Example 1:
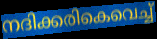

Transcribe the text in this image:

നദിക്കരികെവെച്ച്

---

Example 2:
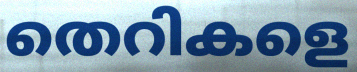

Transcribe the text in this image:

തെറികളെ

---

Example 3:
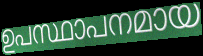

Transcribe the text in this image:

ഉപസ്ഥാപനമായ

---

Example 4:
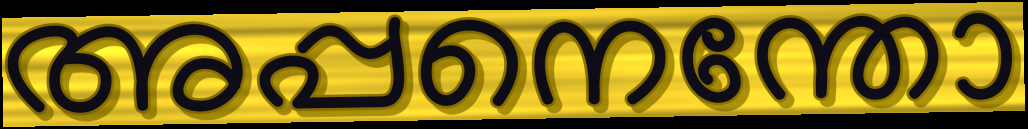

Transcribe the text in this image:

അപ്പനെന്തോ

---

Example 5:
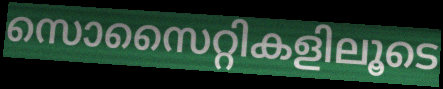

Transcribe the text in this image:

സൊസൈറ്റികളിലൂടെ